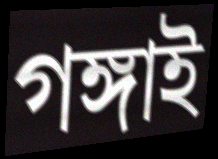
গঙ্গাই